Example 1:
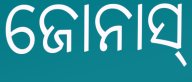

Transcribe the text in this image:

ଜୋନାସ୍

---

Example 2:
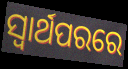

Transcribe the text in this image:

ସ୍ୱାର୍ଥପରରେ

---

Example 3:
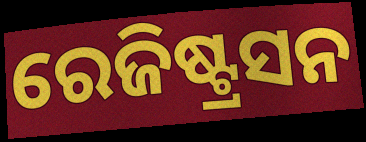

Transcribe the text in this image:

ରେଜିଷ୍ଟ୍ରସନ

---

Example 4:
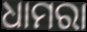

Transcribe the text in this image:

ଧାମରା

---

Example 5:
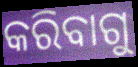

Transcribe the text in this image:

କରିବାଗୁ